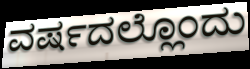
ವರ್ಷದಲ್ಲೊಂದು